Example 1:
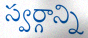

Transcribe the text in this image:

స్వర్గాన్ని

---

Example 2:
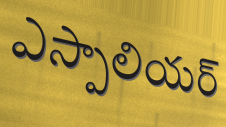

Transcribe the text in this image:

ఎస్పాలియర్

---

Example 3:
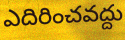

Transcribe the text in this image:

ఎదిరించవద్దు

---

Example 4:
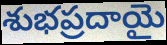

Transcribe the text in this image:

శుభప్రదాయై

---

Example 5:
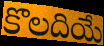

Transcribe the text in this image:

కొలదియే